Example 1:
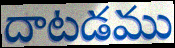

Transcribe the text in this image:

దాటడము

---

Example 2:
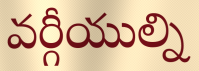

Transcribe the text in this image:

వర్గీయుల్ని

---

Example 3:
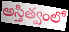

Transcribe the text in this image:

అస్తిత్వంలో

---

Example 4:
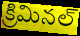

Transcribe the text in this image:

క్రిమినల్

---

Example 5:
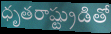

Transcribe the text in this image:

ధృతరాష్ట్రుడితో